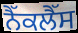
ਨੈੱਕਲੈੱਸ